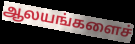
ஆலயங்களைச்